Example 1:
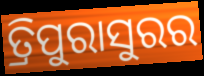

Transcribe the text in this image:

ତ୍ରିପୁରାସୁରର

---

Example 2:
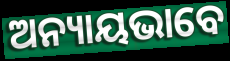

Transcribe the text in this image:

ଅନ୍ୟାୟଭାବେ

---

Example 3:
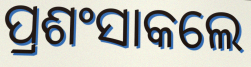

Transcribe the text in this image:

ପ୍ରଶଂସାକଲେ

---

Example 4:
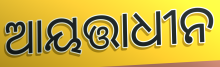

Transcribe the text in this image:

ଆୟତ୍ତାଧୀନ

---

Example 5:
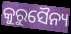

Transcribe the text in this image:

କୁରୁସୈନ୍ୟ